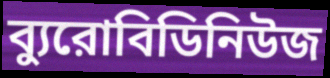
ব্যুরোবিডিনিউজ